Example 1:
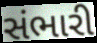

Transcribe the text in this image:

સંભારી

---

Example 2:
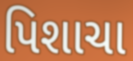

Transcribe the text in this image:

પિશાચા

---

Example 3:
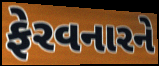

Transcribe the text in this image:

ફેરવનારને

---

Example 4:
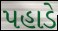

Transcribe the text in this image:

પહાડે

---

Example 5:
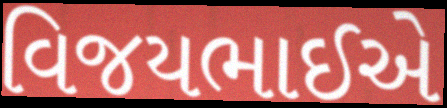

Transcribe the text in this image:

વિજયભાઈએ